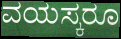
ವಯಸ್ಕರೂ